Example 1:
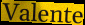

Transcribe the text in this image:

Valente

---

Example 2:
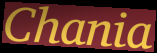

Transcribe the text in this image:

Chania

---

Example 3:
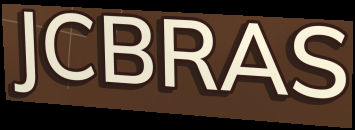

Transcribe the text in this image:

JCBRAS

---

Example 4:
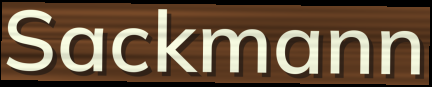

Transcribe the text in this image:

Sackmann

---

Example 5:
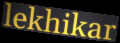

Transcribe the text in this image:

lekhikar